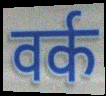
वर्क